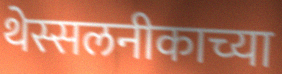
थेस्सलनीकाच्या